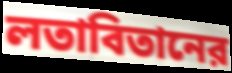
লতাবিতানের